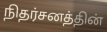
நிதர்சனத்தின்